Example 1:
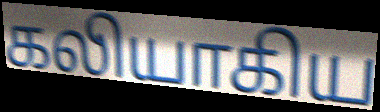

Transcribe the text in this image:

கலியாகிய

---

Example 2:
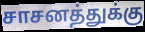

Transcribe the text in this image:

சாசனத்துக்கு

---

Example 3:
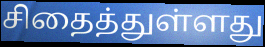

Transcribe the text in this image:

சிதைத்துள்ளது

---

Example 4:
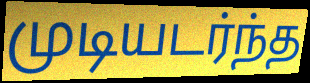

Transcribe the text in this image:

முடியடர்ந்த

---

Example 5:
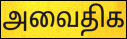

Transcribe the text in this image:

அவைதிக